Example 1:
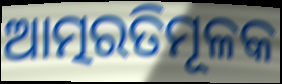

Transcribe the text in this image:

ଆତ୍ମରତିମୂଳକ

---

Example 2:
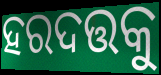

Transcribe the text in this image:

ହରଦତ୍ତକୁ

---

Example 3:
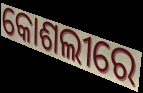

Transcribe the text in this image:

କୋଶଲୀରେ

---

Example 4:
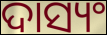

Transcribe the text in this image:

ଦାସ୍ୟଂ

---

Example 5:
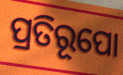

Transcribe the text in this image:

ପ୍ରତିରୂପୋ